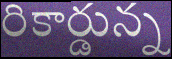
రికార్డున్న